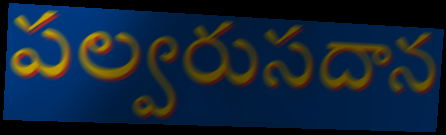
పల్వరుసదాన